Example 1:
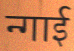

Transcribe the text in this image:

न्गाई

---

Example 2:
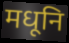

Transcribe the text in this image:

मधूनि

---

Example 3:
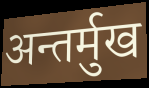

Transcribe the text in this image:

अन्तर्मुख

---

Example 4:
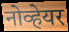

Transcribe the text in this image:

नोव्हेयर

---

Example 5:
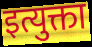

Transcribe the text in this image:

इत्युक्ता